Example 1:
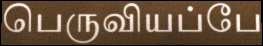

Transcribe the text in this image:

பெருவியப்பே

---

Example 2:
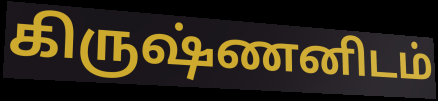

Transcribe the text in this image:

கிருஷ்ணனிடம்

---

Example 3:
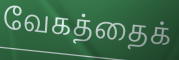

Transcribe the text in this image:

வேகத்தைக்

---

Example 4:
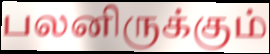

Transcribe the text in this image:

பலனிருக்கும்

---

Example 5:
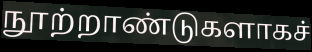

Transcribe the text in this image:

நூற்றாண்டுகளாகச்